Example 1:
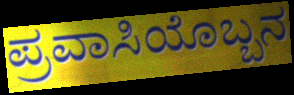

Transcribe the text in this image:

ಪ್ರವಾಸಿಯೊಬ್ಬನ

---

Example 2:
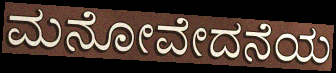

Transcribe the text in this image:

ಮನೋವೇದನೆಯ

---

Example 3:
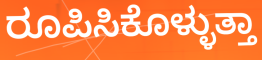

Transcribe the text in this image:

ರೂಪಿಸಿಕೊಳ್ಳುತ್ತಾ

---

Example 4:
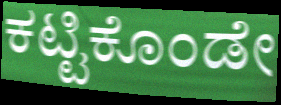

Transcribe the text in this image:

ಕಟ್ಟಿಕೊಂಡೇ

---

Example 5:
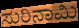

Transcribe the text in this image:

ಸುರಿನಾಮಿ